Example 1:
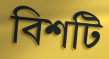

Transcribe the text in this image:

বিশটি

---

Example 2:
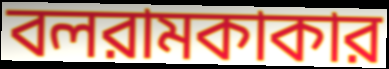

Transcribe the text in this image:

বলরামকাকার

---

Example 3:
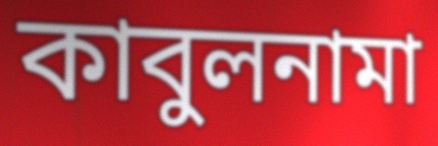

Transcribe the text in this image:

কাবুলনামা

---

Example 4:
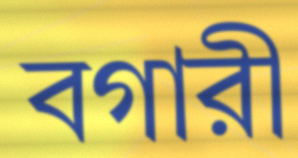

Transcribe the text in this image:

বগারী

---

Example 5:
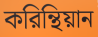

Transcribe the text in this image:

করিন্থিয়ান